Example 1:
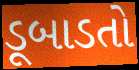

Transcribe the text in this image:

ડૂબાડતો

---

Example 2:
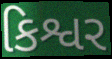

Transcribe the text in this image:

કિશ્વર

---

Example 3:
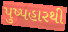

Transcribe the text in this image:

પુષ્પહારથી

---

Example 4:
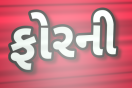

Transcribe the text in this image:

ફોરની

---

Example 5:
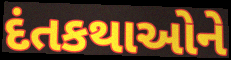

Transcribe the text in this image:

દંતકથાઓને